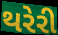
થરેરી